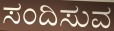
ಸಂದಿಸುವ